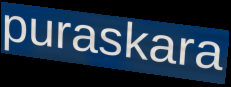
puraskara